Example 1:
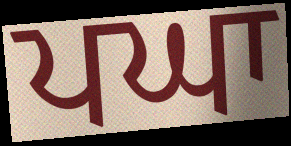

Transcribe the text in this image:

ਪਘਾ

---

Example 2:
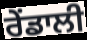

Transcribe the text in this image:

ਰੇਂਡਾਲੀ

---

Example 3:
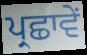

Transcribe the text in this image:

ਪ੍ਰਛਾਵੇਂ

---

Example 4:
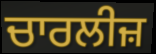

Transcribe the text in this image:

ਚਾਰਲੀਜ਼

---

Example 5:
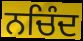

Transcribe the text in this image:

ਨਚਿੰਦ